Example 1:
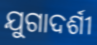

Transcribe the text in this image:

ଯୁଗାଦର୍ଶୀ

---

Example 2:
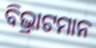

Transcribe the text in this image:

ବିଭ୍ରାଟମାନ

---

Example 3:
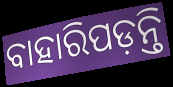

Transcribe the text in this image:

ବାହାରିପଡ଼ନ୍ତି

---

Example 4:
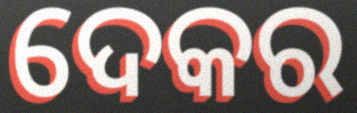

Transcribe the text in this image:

ଦେକର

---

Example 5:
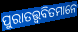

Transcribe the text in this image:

ପୁରାତତ୍ତ୍ୱବିତମାନେ